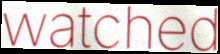
watched